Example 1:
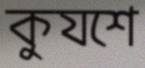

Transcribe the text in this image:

কুযশে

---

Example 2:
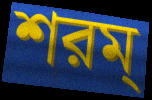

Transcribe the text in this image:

শরম্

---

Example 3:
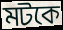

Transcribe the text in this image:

মটকে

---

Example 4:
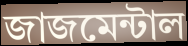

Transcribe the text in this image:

জাজমেন্টাল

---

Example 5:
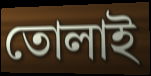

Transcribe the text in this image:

তোলাই